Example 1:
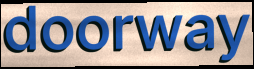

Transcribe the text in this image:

doorway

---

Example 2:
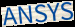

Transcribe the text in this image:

ANSYS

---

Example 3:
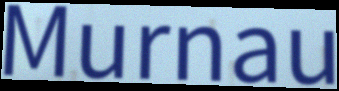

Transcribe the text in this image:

Murnau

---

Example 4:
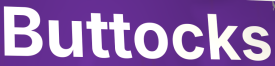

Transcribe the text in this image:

Buttocks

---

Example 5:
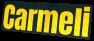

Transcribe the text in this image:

Carmeli